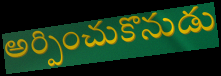
అర్పించుకొనుడు